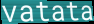
vatata